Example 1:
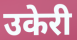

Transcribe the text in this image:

उकेरी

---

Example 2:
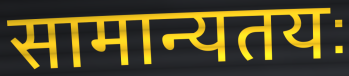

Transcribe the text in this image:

सामान्यतयः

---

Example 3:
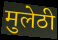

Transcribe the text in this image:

मुलेठी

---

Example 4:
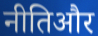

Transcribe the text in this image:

नीतिऔर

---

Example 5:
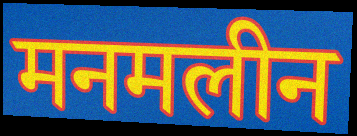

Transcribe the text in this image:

मनमलीन